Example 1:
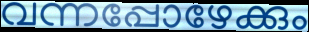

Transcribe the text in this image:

വന്നപ്പോഴേക്കും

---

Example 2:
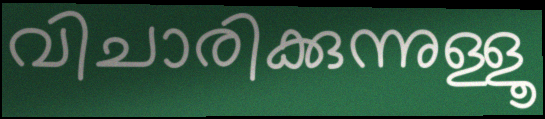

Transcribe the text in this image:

വിചാരിക്കുന്നുള്ളൂ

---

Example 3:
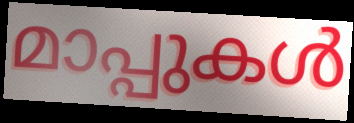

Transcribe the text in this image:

മാപ്പുകൾ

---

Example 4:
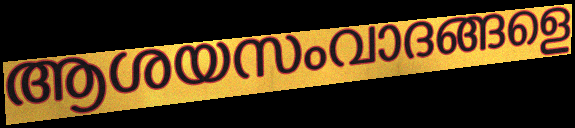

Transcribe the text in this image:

ആശയസംവാദങ്ങളെ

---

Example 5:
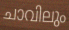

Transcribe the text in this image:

ചാവിലും